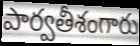
పార్వతీశంగారు